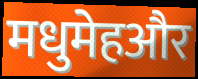
मधुमेहऔर